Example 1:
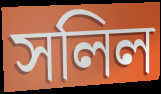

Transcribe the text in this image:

সলিল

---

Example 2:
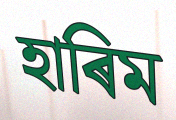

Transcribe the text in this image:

হাৰিম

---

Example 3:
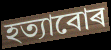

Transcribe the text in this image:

হত্যাবোৰ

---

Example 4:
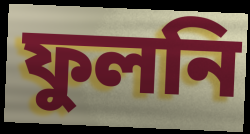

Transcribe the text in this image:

ফুলনি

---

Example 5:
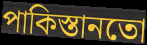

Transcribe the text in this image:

পাকিস্তানতো